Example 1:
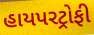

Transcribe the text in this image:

હાયપરટ્રોફી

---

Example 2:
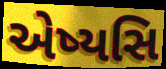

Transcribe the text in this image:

એષ્યસિ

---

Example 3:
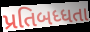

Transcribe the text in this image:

પ્રતિબધ્ધતા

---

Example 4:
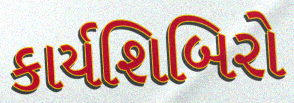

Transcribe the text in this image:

કાર્યશિબિરો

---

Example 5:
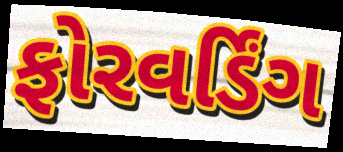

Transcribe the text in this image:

ફોરવર્ડિંગ